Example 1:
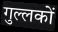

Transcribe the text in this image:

गुल्लकों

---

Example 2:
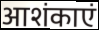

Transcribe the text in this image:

आशंकाएं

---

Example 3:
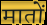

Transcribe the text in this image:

मातों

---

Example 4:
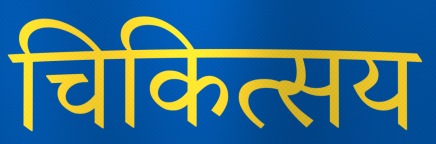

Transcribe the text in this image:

चिकित्सय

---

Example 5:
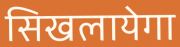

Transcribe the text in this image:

सिखलायेगा